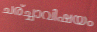
ചര്ച്ചാവിഷയം